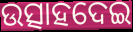
ଉତ୍ସାହଦେଇ